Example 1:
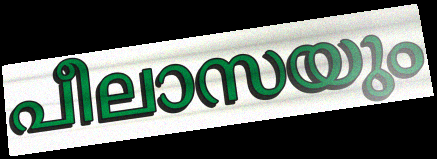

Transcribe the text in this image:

പീലാസയും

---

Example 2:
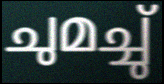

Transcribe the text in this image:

ചുമച്ചു്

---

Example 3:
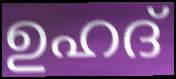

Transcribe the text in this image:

ഉഹദ്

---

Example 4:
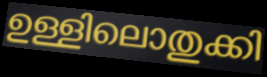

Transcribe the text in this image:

ഉള്ളിലൊതുക്കി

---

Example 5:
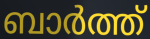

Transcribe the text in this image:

ബാർത്ത്